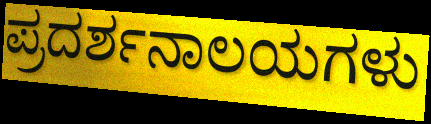
ಪ್ರದರ್ಶನಾಲಯಗಳು